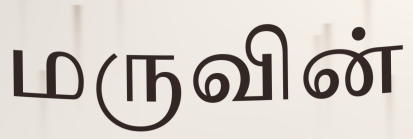
மருவின்